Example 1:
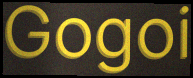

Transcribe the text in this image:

Gogoi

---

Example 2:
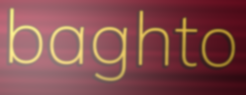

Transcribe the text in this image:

baghto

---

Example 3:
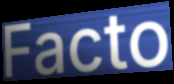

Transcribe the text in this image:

Facto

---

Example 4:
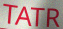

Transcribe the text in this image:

TATR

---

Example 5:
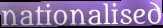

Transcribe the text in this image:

nationalised